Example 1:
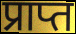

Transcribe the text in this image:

प्राप्‍त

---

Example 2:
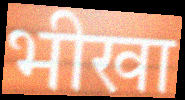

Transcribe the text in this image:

भीखा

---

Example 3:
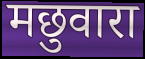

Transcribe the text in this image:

मछुवारा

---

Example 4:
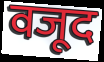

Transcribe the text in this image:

वजूद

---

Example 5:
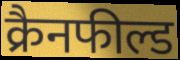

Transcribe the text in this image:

क्रैनफील्ड